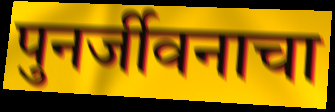
पुनर्जीवनाचा